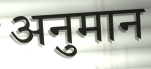
अनुमान